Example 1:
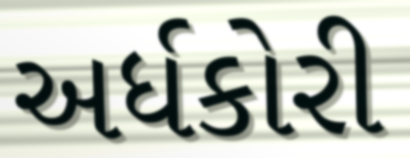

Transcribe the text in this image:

અર્ધકોરી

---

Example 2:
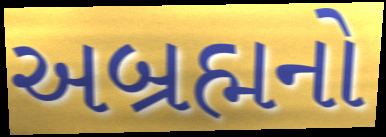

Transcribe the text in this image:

અબ્રહ્મનો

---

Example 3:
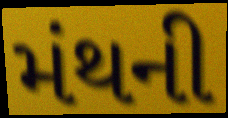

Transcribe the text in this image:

મંથની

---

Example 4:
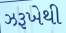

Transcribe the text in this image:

ઝરૂખેથી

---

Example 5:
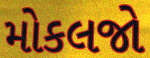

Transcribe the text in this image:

મોકલજો